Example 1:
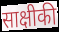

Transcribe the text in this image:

साक्षीकी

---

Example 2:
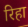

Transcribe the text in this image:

रिहा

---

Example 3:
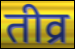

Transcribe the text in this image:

तीव्र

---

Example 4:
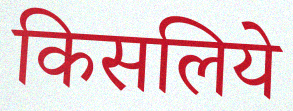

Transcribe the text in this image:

किसलिये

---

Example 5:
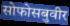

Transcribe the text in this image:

सोफोसबुवीर